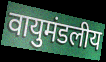
वायुमंडलीय